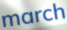
march